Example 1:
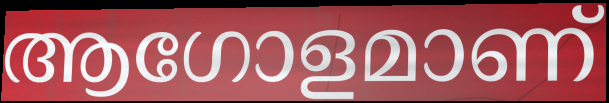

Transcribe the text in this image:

ആഗോളമാണ്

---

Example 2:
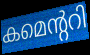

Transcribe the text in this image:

കമെന്ററി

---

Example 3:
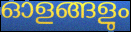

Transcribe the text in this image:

ഓളങ്ങളും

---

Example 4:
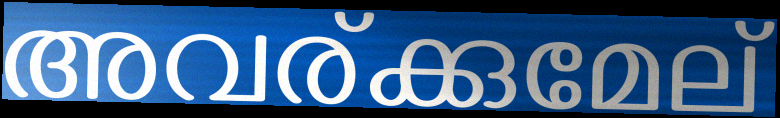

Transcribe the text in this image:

അവര്ക്കുമേല്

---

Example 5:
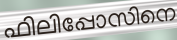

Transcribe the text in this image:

ഫിലിപ്പോസിനെ